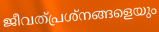
ജീവത്പ്രശ്നങ്ങളെയും